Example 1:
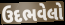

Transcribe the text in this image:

ઉદભવેલો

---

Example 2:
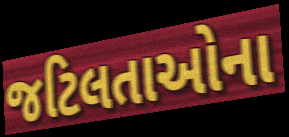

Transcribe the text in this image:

જટિલતાઓના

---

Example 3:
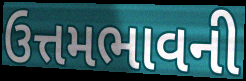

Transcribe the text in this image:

ઉત્તમભાવની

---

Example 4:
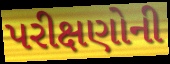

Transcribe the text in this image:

પરીક્ષણોની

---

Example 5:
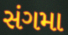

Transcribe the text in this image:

સંગમા